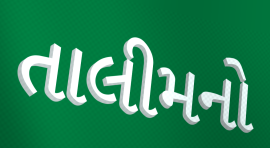
તાલીમનો